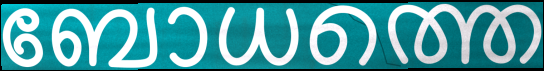
ബോധത്തെ